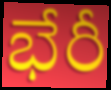
భేరీ